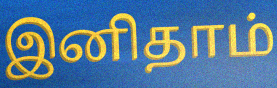
இனிதாம்